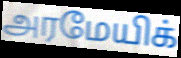
அரமேயிக்